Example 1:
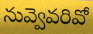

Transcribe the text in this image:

నువ్వెవరివో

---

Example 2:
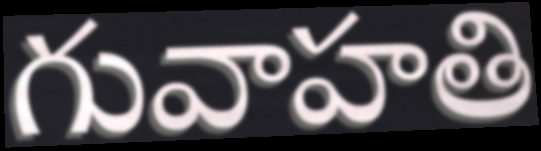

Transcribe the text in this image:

గువాహతి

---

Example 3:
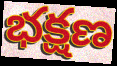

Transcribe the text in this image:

భక్షణ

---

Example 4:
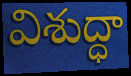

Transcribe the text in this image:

విశుద్ధా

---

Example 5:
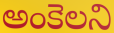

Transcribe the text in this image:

అంకెలని